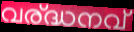
വര്ദ്ധനവ്